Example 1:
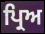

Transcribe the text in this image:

ਪ੍ਰਿਅ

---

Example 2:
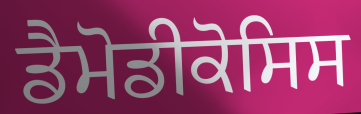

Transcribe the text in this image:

ਡੈਮੋਡੀਕੋਸਿਸ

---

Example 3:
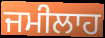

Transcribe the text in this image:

ਜਮੀਲਾਹ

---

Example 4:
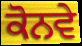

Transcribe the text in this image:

ਕੋਨਵੇ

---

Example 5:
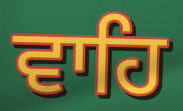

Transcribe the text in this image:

ਵਾਹਿ